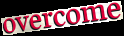
overcome